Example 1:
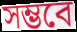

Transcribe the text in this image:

সম্ভবে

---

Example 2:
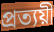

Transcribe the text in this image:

প্রত্যয়ী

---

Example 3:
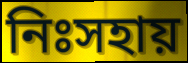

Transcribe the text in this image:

নিঃসহায়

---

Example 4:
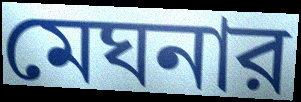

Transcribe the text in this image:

মেঘনার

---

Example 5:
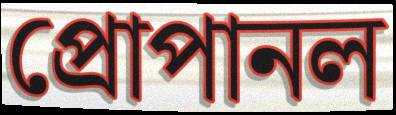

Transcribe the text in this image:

প্রোপানল